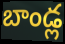
బాండ్ల